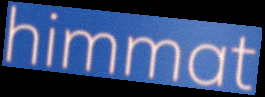
himmat